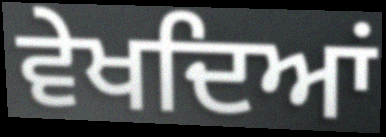
ਵੇਖਦਿਆਂ